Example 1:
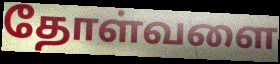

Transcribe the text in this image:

தோள்வளை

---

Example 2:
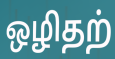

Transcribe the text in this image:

ஒழிதற்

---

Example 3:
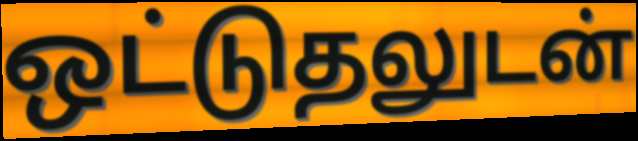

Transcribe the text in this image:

ஒட்டுதலுடன்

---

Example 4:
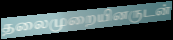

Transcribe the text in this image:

தலைமுறையினருடன்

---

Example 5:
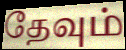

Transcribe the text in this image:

தேவும்